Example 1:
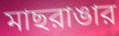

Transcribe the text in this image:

মাছরাঙার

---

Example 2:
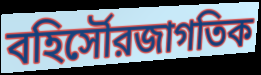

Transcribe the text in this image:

বহির্সৌরজাগতিক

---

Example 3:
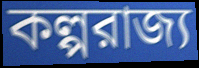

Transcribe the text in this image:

কল্পরাজ্য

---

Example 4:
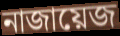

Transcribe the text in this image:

নাজায়েজ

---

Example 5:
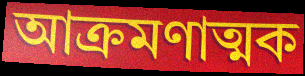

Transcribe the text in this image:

আক্রমণাত্মক